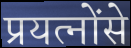
प्रयत्नोंसे